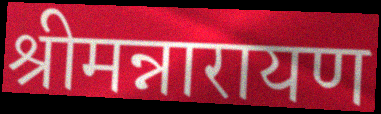
श्रीमन्नारायण